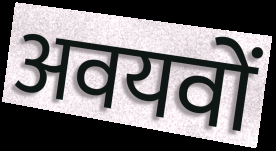
अवयवों